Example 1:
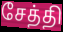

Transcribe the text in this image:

சேத்தி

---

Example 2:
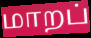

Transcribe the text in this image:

மாறப்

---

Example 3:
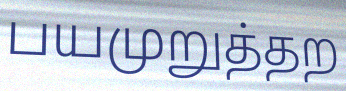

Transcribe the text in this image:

பயமுறுத்தற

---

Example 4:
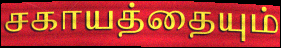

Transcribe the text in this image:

சகாயத்தையும்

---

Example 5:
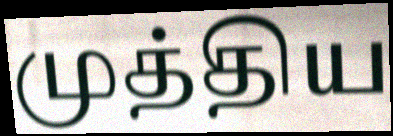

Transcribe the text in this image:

முத்திய